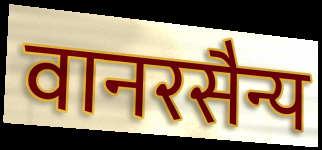
वानरसैन्य